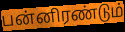
பன்னிரண்டும்